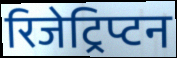
रिजेट्रिप्टन